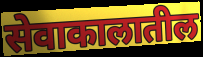
सेवाकालातील